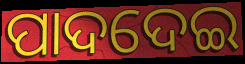
ପାଦଦେଇ